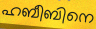
ഹബീബിനെ